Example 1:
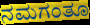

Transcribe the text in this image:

ನಮಗಂತೂ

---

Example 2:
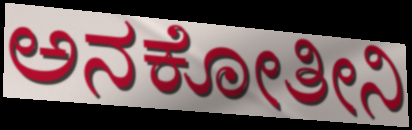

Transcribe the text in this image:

ಅನಕೋತೀನಿ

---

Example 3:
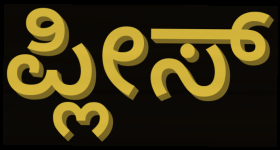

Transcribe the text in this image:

ಪ್ಲೀಸ್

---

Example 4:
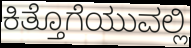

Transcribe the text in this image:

ಕಿತ್ತೊಗೆಯುವಲ್ಲಿ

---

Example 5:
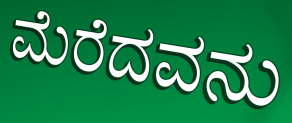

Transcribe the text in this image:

ಮೆರೆದವನು